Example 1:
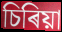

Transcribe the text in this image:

চিৰিয়া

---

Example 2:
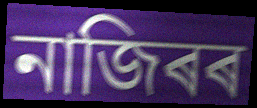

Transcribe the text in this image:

নাজিৰৰ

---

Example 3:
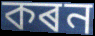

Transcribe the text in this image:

কৰন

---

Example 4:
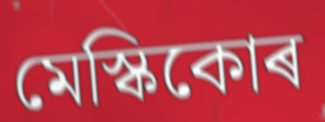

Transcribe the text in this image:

মেস্কিকোৰ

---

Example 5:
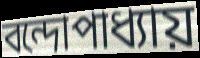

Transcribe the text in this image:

বন্দোপাধ্যায়